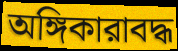
অঙ্গিকারাবদ্ধ